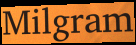
Milgram